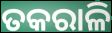
ତକରାଳି